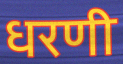
धरणी